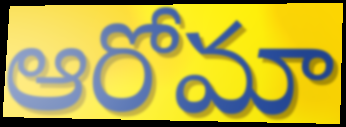
ఆరోమా